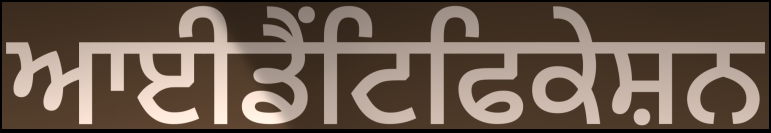
ਆਈਡੈਂਟਿਫਿਕੇਸ਼ਨ